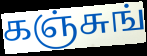
கஞ்சுங்